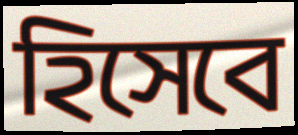
হিসেবে